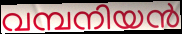
വമ്പനിയൻ